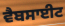
ਵੈਬਸਾਈਟ